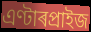
এণ্টাৰপ্ৰাইজ